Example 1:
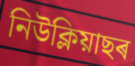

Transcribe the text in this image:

নিউক্লিয়াছৰ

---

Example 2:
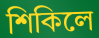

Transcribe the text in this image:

শিকিলে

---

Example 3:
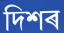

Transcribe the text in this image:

দিশৰ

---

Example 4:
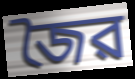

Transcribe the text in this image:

জৈৱ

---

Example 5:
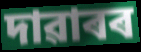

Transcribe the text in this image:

দাৱাৰৰ